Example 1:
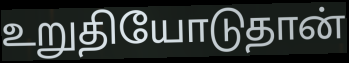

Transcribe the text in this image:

உறுதியோடுதான்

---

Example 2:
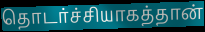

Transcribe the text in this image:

தொடர்ச்சியாகத்தான்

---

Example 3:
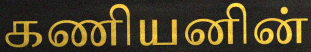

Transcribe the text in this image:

கணியனின்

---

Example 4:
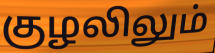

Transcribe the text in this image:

குழலிலும்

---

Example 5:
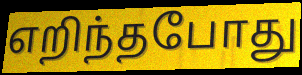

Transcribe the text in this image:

எறிந்தபோது